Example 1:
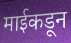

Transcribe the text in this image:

माईकडून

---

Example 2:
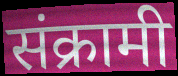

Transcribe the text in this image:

संक्रामी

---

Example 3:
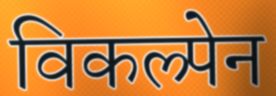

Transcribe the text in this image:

विकल्पेन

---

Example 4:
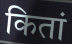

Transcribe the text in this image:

कितां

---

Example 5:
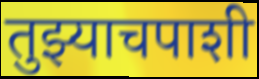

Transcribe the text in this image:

तुझ्याचपाशी